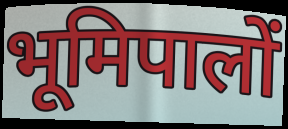
भूमिपालों